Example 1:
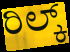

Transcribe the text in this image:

ರಿಲ್ಕ್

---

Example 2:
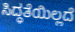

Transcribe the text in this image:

ಸಿದ್ಧತೆಯಿಲ್ಲದೆ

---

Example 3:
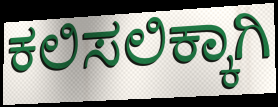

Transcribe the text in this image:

ಕಲಿಸಲಿಕ್ಕಾಗಿ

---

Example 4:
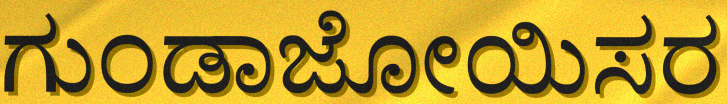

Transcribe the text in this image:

ಗುಂಡಾಜೋಯಿಸರ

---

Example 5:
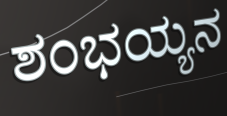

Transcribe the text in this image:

ಶಂಭಯ್ಯನ